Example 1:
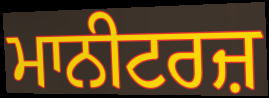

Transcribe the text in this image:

ਮਾਨੀਟਰਜ਼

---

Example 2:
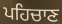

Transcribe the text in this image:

ਪਹਿਚਾਣ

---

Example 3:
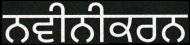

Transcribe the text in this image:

ਨਵੀਨੀਕਰਨ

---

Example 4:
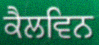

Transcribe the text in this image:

ਕੈਲਵਿਨ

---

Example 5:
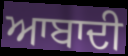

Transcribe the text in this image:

ਆਬਾਦੀ